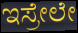
ಇಸ್ರೇಲೇ